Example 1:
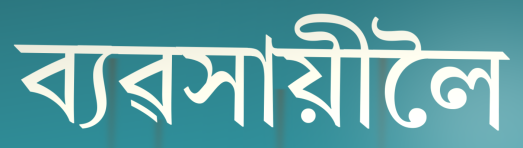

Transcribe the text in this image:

ব্যৱসায়ীলৈ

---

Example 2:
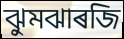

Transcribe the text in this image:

ঝুমঝাৰজি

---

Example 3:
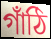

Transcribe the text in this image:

গাঁঠি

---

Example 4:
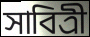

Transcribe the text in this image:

সাবিত্ৰী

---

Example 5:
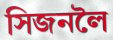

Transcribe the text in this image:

সিজনলৈ